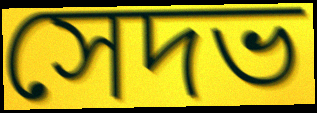
সেদভ